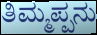
ತಿಮ್ಮಪ್ಪನು